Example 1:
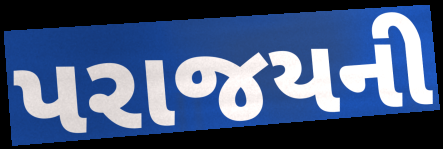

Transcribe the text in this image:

પરાજયની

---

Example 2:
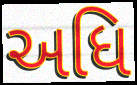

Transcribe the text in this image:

અધિ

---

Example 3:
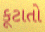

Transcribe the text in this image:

કૂટાતો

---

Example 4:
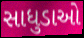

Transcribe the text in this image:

સાધુડાઓ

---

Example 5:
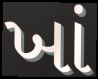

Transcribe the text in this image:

ખાં